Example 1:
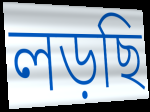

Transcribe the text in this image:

লড়ছি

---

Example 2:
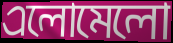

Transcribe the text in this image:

এলোমেলো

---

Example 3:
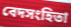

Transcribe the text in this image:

বেদসংহিতা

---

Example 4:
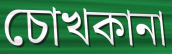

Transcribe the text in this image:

চোখকানা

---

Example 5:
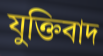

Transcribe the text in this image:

যুক্তিবাদ